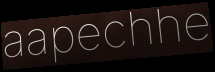
aapechhe